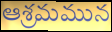
ఆశ్రమమున